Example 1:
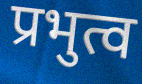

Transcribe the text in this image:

प्रभुत्व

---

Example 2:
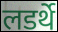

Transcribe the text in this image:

लडर्थे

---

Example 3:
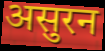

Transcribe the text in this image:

असुरन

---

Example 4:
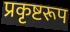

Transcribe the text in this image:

प्रकृष्टरूप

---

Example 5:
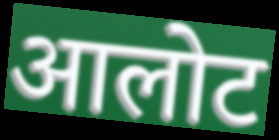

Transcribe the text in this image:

आलोट